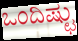
ಒಂದಿಷ್ಟು